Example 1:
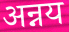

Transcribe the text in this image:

अन्नय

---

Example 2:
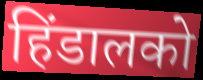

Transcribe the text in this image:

हिंडालको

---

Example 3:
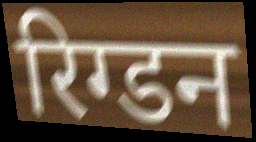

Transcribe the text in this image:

रिग्डन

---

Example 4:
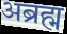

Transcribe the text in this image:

अब्रह्म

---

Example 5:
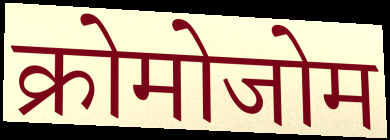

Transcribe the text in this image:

क्रोमोजोम